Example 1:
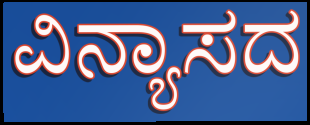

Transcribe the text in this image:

ವಿನ್ಯಾಸದ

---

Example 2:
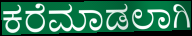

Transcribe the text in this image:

ಕರೆಮಾಡಲಾಗಿ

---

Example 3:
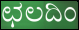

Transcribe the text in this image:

ಛಲದಿಂ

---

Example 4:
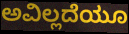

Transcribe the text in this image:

ಅವಿಲ್ಲದೆಯೂ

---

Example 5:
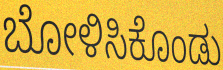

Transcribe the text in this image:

ಬೋಳಿಸಿಕೊಂಡು